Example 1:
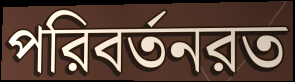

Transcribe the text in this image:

পরিবর্তনরত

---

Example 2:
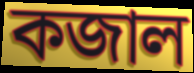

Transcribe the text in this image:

কজাল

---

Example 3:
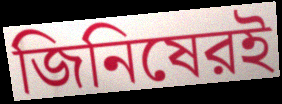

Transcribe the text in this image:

জিনিষেরই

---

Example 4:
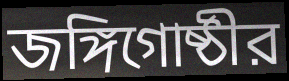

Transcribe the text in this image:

জঙ্গিগোষ্ঠীর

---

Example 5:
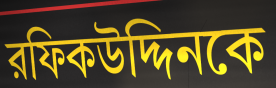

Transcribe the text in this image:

রফিকউদ্দিনকে